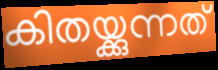
കിതയ്ക്കുന്നത്